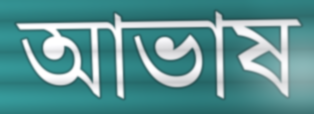
আভাষ